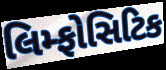
લિમ્ફોસિટિક